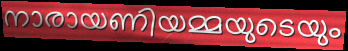
നാരായണിയമ്മയുടെയും